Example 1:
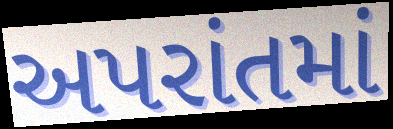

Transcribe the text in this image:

અપરાંતમાં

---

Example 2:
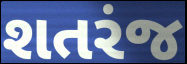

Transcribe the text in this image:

શતરંજ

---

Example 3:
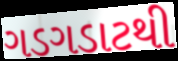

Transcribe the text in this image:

ગડગડાટથી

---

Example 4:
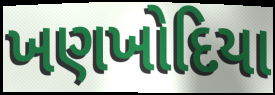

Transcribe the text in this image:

ખણખોદિયા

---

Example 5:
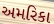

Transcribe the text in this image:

અમરિકા